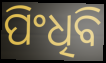
ପିଂଧିବି